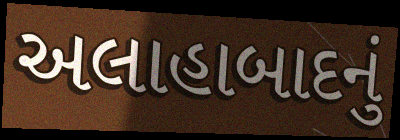
અલાહાબાદનું